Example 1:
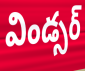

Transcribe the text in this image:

విండ్సర్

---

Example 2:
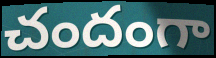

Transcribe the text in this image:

చందంగా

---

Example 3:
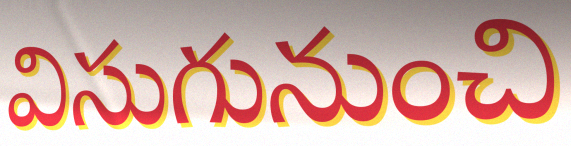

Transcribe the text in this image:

విసుగునుంచి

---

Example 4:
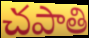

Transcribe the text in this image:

చపాతి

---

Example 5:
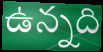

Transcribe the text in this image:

ఉన్నది